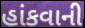
હાંકવાની